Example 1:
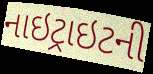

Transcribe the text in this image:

નાઇટ્રાઇટની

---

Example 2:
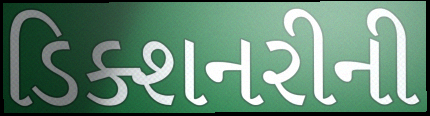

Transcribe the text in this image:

ડિક્શનરીની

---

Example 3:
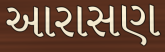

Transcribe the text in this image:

આરાસણ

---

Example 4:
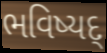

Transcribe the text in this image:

ભવિષ્યદ્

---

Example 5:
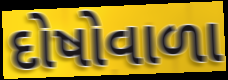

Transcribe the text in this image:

દોષોવાળા